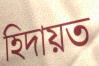
হিদায়ত